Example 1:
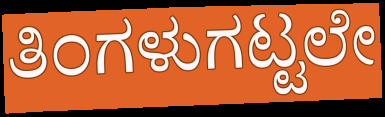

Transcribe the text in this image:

ತಿಂಗಳುಗಟ್ಟಲೇ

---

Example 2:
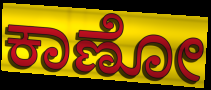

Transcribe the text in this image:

ಕಾಣೋ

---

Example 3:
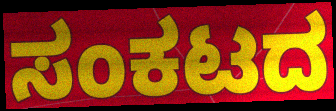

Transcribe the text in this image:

ಸಂಕಟದ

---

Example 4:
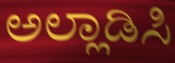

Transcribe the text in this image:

ಅಲ್ಲಾಡಿಸಿ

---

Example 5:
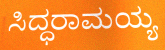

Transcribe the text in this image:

ಸಿದ್ಧರಾಮಯ್ಯ